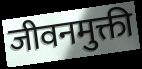
जीवनमुक्ती